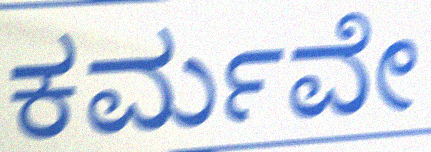
ಕರ್ಮವೇ